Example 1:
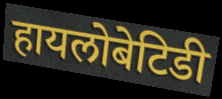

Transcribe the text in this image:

हायलोबेटिडी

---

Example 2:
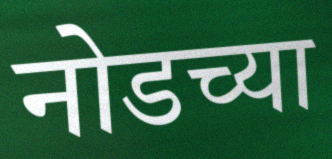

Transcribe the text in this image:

नोडच्या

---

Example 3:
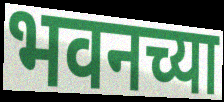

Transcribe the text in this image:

भवनच्या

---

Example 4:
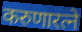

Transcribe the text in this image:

करुणारत्ने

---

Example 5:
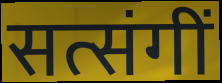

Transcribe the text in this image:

सत्संगीं